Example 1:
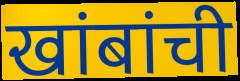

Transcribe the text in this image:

खांबांची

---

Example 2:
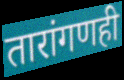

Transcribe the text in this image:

तारांगणही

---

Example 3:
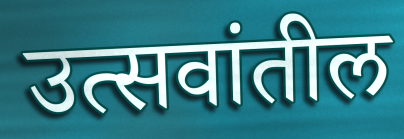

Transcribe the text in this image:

उत्सवांतील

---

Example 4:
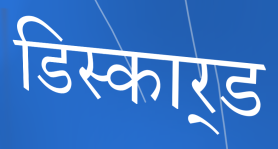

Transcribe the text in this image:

डिस्कार्ड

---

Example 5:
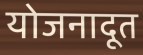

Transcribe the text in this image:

योजनादूत